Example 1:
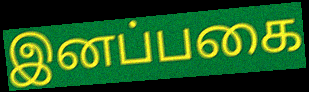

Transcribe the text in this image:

இனப்பகை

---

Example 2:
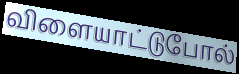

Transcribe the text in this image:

விளையாட்டுபோல்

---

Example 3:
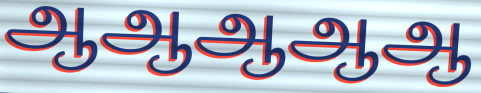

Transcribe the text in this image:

ஆஆஆஆஆ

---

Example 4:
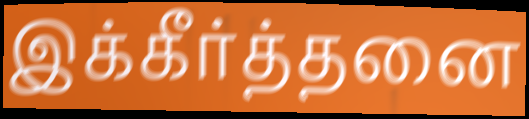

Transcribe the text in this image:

இக்கீர்த்தனை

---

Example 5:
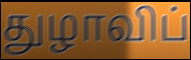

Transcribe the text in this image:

துழாவிப்